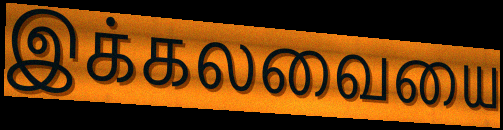
இக்கலவையை